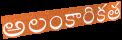
అలంకారికత